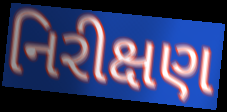
નિરીક્ષણ